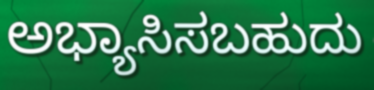
ಅಭ್ಯಾಸಿಸಬಹುದು